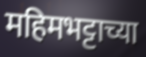
महिमभट्टाच्या